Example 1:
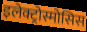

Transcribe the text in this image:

इलेक्ट्रोस्मोसिस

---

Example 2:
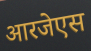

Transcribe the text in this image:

आरजेएस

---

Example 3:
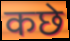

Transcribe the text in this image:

कछे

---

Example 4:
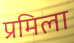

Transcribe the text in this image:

प्रमिला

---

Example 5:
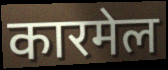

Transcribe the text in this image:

कारमेल